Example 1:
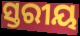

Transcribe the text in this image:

ସ୍ତରୀୟ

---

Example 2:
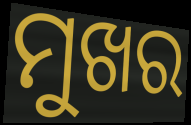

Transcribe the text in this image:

ମୁଖର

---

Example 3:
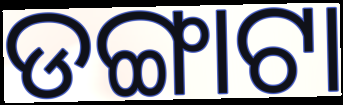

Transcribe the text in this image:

ଡଙ୍ଗାଟା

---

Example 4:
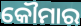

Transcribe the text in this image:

କୌମାର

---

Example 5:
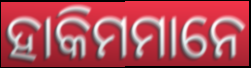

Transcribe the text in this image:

ହାକିମମାନେ